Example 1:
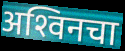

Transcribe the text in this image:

अश्विनचा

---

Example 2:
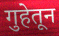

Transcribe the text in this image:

गुहेतून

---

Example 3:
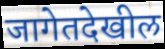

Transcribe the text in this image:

जागेतदेखील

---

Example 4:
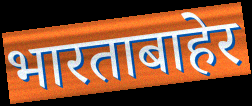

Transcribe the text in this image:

भारताबाहेर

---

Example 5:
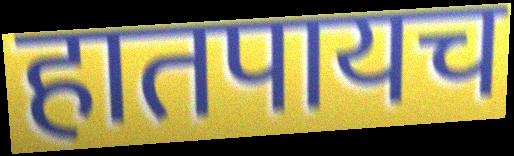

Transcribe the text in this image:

हातपायच